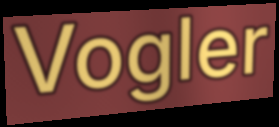
Vogler